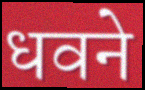
धवने